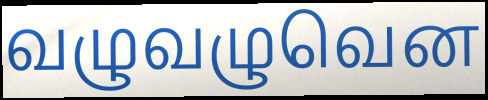
வழுவழுவென